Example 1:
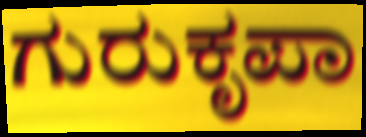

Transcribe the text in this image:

ಗುರುಕೃಪಾ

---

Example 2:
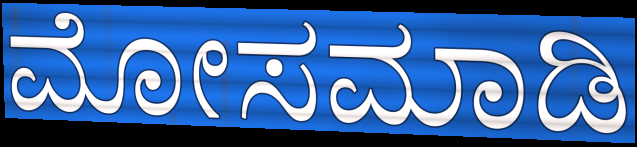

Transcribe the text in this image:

ಮೋಸಮಾಡಿ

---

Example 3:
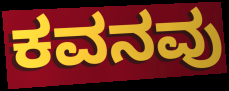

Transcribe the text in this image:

ಕವನವು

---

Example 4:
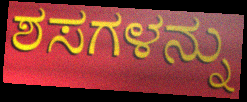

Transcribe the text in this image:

ಶಸಗಳನ್ನು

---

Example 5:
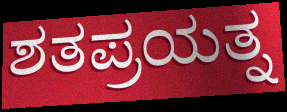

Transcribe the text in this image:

ಶತಪ್ರಯತ್ನ